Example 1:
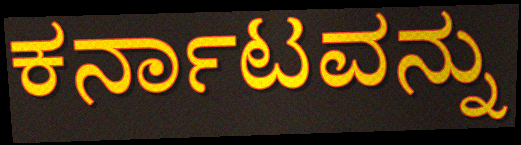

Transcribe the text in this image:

ಕರ್ನಾಟವನ್ನು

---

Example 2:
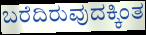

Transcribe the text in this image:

ಬರೆದಿರುವುದಕ್ಕಿಂತ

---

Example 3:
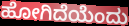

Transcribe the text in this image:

ಹೋಗಿದೆಯೆಂದು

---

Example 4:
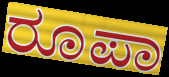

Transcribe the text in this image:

ರೂಪಾ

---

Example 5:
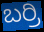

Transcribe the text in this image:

ಬರ್ರಿ